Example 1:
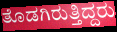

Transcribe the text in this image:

ತೊಡಗಿರುತ್ತಿದ್ದರು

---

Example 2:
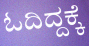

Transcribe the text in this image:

ಓದಿದ್ದಕ್ಕೆ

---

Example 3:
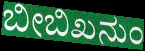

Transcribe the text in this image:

ಬೀಬಿಖನುಂ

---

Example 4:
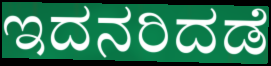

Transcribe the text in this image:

ಇದನರಿದಡೆ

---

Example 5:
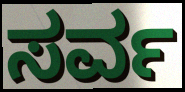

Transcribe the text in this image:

ಸರ್ವ